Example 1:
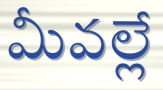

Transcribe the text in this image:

మీవల్లే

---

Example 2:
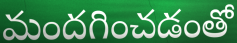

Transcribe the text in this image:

మందగించడంతో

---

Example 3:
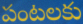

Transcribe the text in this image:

పంటలకు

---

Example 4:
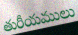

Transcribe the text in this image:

తురీయములు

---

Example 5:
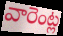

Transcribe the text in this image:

వారెంట్ల